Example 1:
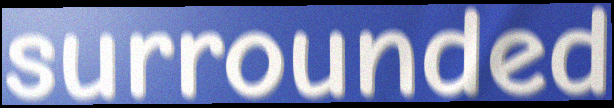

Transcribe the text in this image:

surrounded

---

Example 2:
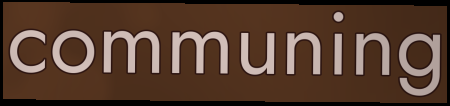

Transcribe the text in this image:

communing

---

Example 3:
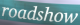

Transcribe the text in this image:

roadshow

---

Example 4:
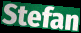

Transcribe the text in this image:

Stefan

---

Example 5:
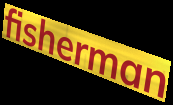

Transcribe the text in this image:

fisherman